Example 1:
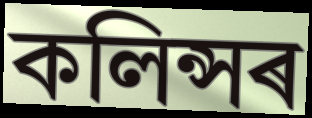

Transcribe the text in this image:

কলিন্সৰ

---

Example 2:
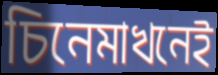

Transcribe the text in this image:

চিনেমাখনেই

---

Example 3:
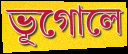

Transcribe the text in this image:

ভূগোলে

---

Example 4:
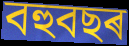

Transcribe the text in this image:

বহুবছৰ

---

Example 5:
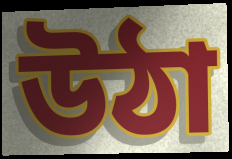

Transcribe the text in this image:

উঠা